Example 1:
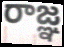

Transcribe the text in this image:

రాజ్ఞ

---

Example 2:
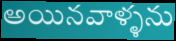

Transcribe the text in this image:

అయినవాళ్ళను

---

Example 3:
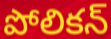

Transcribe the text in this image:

పోలికన్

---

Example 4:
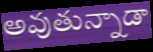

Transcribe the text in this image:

అవుతున్నాడా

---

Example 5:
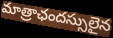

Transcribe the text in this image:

మాత్రాఛందస్సులైన